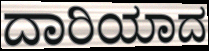
ದಾರಿಯಾದ